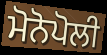
ਮੋਨੋਪੋਲੀ